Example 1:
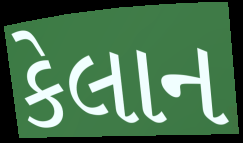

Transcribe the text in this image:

કેલાન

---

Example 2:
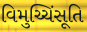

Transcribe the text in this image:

વિમુચ્ચિંસૂતિ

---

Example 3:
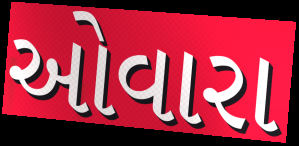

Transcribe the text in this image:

ઓવારા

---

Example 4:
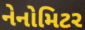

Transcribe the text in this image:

નેનોમિટર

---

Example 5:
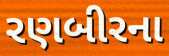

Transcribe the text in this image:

રણબીરના